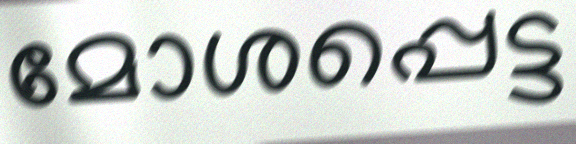
മോശപ്പെട്ട